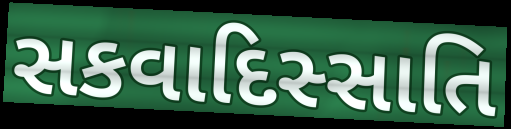
સકવાદિસ્સાતિ